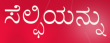
ಸೆಲ್ಫಿಯನ್ನು